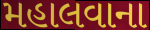
મહાલવાના